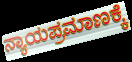
ನ್ಯಾಯಪ್ರಮಾಣಕ್ಕೆ